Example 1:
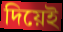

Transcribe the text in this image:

দিয়েই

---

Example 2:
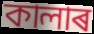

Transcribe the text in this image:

কালাৰ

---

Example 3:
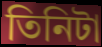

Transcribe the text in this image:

তিনিটা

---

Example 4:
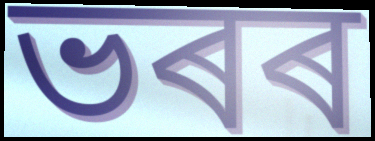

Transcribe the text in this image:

ভৰৰ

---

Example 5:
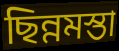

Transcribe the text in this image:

ছিন্নমস্তা